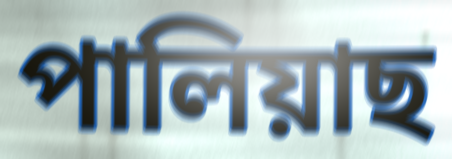
পালিয়াছ